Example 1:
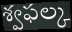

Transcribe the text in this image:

శ్వఫల్క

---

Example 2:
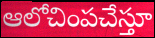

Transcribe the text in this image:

ఆలోచింపచేస్తూ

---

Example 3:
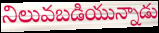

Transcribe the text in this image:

నిలువబడియున్నాడు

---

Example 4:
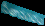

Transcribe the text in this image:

సీతానగరం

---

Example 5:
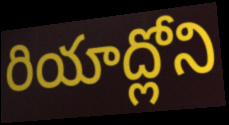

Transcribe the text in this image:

రియాద్లోని